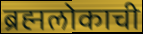
ब्रह्मलोकाची